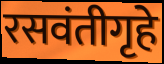
रसवंतीगृहे